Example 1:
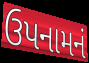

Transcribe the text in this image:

ઉપનામનં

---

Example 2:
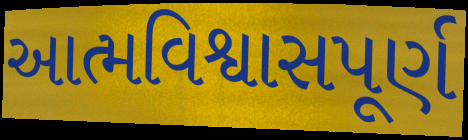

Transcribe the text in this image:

આત્મવિશ્વાસપૂર્ણ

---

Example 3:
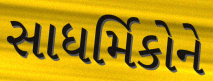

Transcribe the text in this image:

સાધર્મિકોને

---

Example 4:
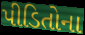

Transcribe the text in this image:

પીડિતોના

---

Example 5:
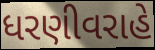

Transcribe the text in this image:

ધરણીવરાહે